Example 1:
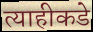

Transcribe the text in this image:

त्याहीकडे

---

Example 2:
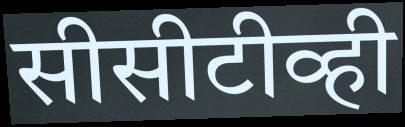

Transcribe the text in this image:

सीसीटीव्ही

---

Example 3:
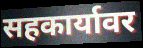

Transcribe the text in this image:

सहकार्यावर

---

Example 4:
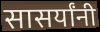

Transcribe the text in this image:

सासर्यांनी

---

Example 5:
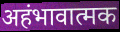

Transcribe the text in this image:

अहंभावात्मक